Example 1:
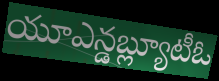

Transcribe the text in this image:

యూఎన్డబ్ల్యూటీఓ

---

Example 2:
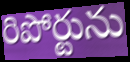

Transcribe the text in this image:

రిపోర్టును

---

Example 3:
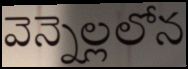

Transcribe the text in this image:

వెన్నెల్లలోన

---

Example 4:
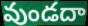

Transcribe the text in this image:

వుండదా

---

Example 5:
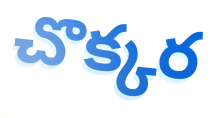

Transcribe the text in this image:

చొక్కర